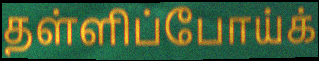
தள்ளிப்போய்க்